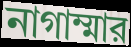
নাগাম্মার